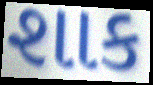
શાક